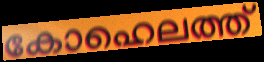
കോഹെലത്ത്